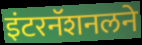
इंटरनॅशनलने